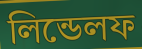
লিন্ডেলফ